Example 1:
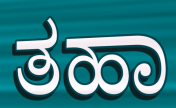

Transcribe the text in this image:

ತಹಾ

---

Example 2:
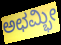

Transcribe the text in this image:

ಅಛಮ್ಭೀ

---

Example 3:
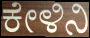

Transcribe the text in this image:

ಕೇಳಿನಿ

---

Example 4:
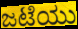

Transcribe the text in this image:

ಜಟೆಯು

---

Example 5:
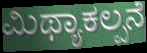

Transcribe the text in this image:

ಮಿಥ್ಯಾಕಲ್ಪನೆ